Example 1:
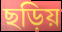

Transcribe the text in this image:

ছড়িয়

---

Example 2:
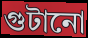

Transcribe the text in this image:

গুটানো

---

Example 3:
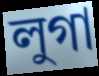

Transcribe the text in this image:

লুগা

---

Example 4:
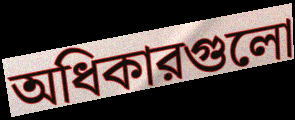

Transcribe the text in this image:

অধিকারগুলো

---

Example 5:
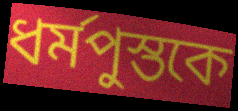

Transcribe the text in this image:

ধর্মপুস্তকে